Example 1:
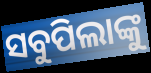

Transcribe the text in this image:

ସବୁପିଲାଙ୍କୁ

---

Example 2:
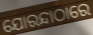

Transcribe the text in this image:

ଯୋରନ୍ଦାଠାରେ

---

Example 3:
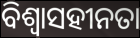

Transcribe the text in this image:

ବିଶ୍ୱାସହୀନତା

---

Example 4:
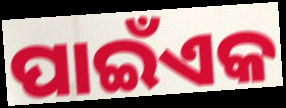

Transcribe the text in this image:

ପାଇଁଏକ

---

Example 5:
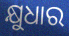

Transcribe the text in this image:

କ୍ଷୁଧାର